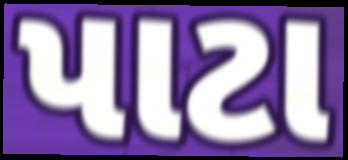
પાટા